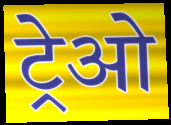
ट्रेओ